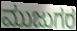
ಮುಜುಗರ